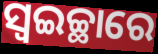
ସ୍ଵଇଚ୍ଛାରେ